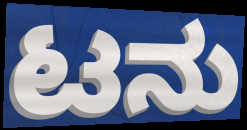
ಟನು